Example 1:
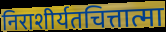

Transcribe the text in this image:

निराशीर्यतचित्तात्मा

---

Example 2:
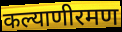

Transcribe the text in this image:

कल्याणीरमण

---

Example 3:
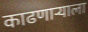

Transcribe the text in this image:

काढणार्‍याला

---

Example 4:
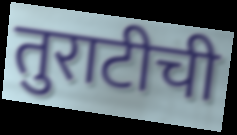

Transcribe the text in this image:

तुराटीची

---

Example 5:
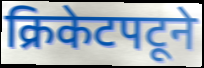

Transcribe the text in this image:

क्रिकेटपटूने